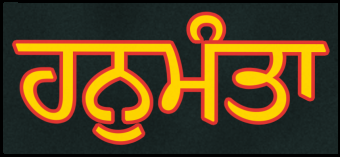
ਹਨੁਮੰਤਾ